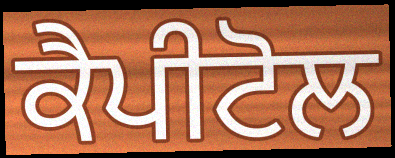
ਕੈਪੀਟੋਲ